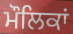
ਮੌਲਿਕਾਂ